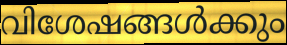
വിശേഷങ്ങൾക്കും